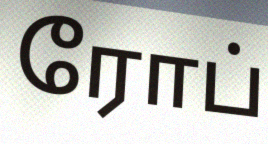
ரோப்